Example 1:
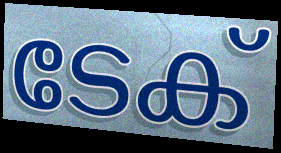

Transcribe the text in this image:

ടേക്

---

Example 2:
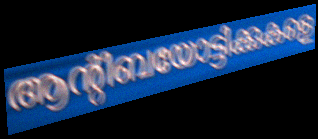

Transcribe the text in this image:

ആന്റിബയോട്ടിക്കുകളെ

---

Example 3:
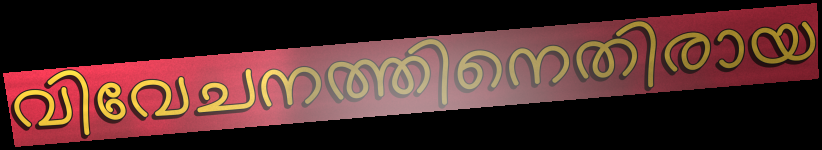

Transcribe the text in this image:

വിവേചനത്തിനെതിരായ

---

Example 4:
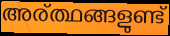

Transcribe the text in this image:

അര്ത്ഥങ്ങളുണ്ട്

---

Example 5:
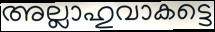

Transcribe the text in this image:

അല്ലാഹുവാകട്ടെ